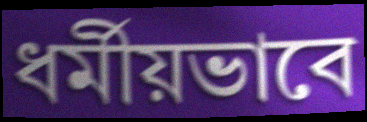
ধর্মীয়ভাবে